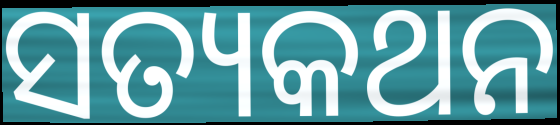
ସତ୍ୟକଥନ